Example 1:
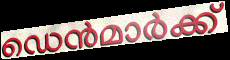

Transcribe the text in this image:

ഡെൻമാർക്ക്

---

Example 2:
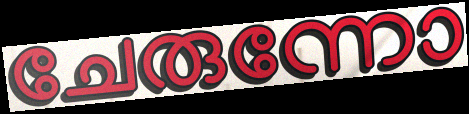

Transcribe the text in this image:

ചേരുന്നോ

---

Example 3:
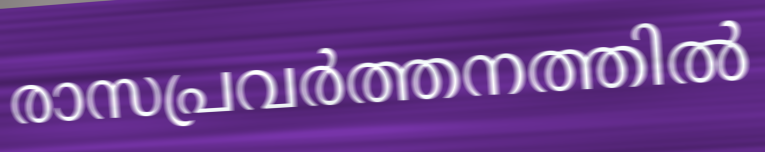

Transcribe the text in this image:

രാസപ്രവർത്തനത്തിൽ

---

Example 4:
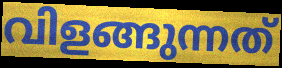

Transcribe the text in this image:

വിളങ്ങുന്നത്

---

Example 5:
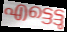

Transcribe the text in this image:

എട്ടെട്ടു